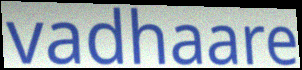
vadhaare